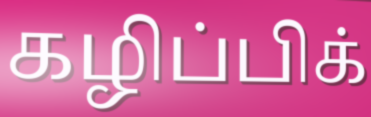
கழிப்பிக்